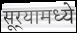
सूर्यामध्ये